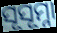
ସୂସୂମ୍ନା